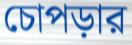
চোপড়ার